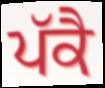
ਪੱਕੈ